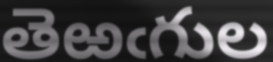
తెఱఁగుల